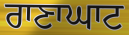
ਰਾਣਾਘਾਟ